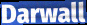
Darwall